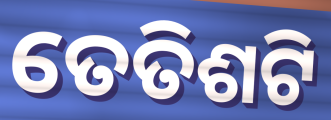
ତେତିଶଟି